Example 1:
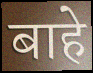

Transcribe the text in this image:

बाहे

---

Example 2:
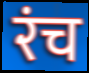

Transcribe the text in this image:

रंच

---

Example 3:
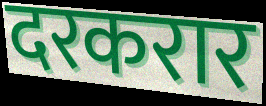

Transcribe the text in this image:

दरकरार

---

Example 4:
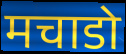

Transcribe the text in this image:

मचाडो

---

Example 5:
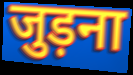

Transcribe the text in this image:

जुड़ना